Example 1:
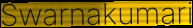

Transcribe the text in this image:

Swarnakumari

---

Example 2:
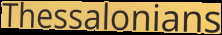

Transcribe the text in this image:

Thessalonians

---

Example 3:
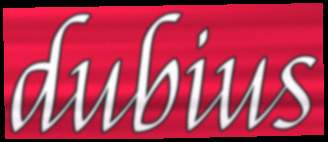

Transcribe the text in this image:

dubius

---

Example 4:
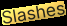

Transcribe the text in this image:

Slashes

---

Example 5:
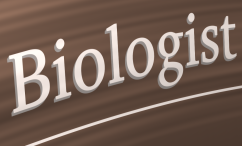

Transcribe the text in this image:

Biologist